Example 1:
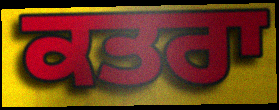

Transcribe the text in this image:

ਕਤਰਾ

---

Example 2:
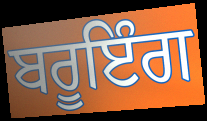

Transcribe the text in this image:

ਬਰੂਇੰਗ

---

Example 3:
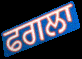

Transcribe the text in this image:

ਫਗਲਾ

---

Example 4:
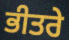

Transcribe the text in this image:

ਭੀਤਰੇ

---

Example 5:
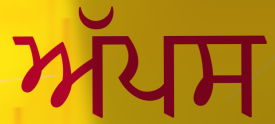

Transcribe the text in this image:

ਅੱਪਸ